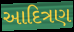
આદિત્રણ